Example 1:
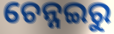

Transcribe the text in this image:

ଚେନ୍ନଇରୁ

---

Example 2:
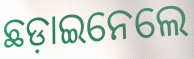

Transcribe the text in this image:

ଛଡ଼ାଇନେଲେ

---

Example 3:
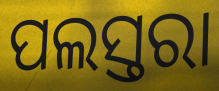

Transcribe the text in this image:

ପଲସ୍ତରା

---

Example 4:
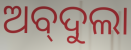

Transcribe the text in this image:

ଅବ୍‌ଦୁଲା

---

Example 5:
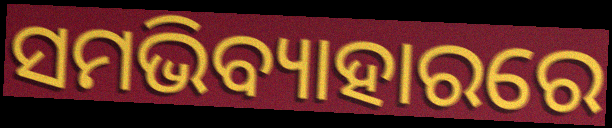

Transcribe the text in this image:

ସମଭିବ୍ୟାହାରରେ